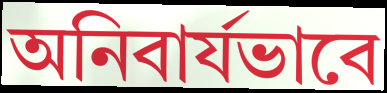
অনিবার্যভাবে